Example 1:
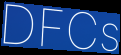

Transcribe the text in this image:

DFCs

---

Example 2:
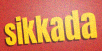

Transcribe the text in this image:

sikkada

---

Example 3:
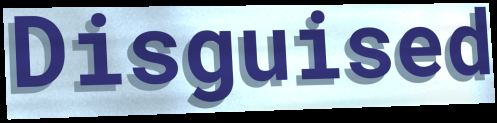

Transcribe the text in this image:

Disguised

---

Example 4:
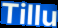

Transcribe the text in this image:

Tillu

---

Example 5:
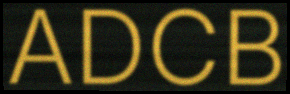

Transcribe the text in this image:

ADCB